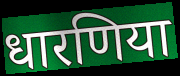
धारणिया